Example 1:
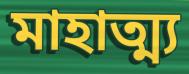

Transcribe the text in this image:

মাহাত্ম্য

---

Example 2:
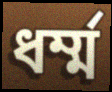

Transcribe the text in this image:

ধৰ্ম্ম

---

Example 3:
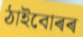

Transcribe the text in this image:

ঠাইবোৰৰ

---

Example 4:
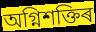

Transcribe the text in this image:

অগ্নিশক্তিৰ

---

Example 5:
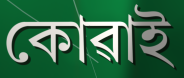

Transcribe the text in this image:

কোৱাই